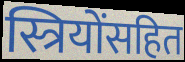
स्त्रियोंसहित